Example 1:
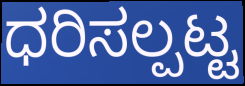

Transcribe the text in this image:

ಧರಿಸಲ್ಪಟ್ಟ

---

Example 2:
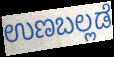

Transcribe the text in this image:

ಉಣಬಲ್ಲಡೆ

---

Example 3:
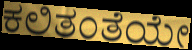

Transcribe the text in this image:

ಕಲಿತಂತೆಯೇ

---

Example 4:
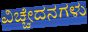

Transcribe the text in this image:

ವಿಚ್ಚೇದನಗಳು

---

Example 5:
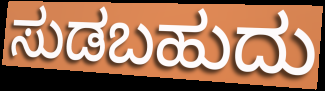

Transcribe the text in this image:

ಸುಡಬಹುದು